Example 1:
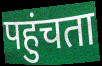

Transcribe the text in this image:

पहुंचता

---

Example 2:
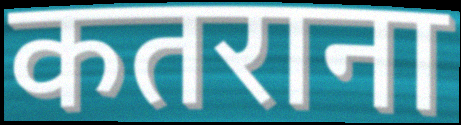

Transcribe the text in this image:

कतराना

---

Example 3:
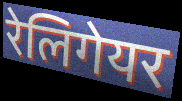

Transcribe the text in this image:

रेलिगेयर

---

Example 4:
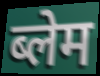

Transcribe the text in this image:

ब्लेम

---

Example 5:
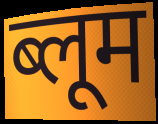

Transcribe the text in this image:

ब्लूम